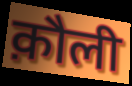
क़ौली